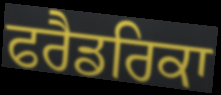
ਫਰੈਡਰਿਕਾ